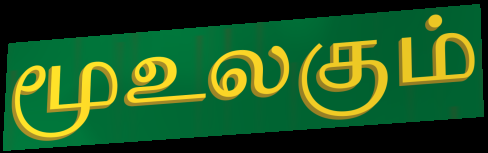
மூஉலகும்